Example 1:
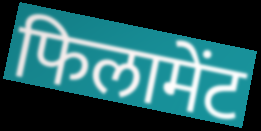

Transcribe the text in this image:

फिलामेंट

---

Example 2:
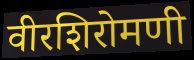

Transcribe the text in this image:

वीरशिरोमणी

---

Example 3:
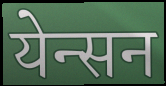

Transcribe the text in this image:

येन्सन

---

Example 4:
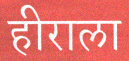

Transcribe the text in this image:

हीराला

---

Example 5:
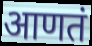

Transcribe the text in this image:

आणतं